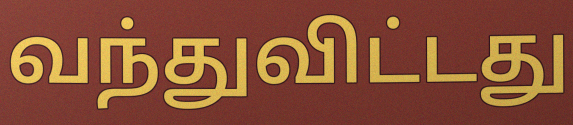
வந்துவிட்டது